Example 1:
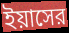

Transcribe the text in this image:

ইয়াসের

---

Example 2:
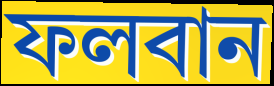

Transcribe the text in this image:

ফলবান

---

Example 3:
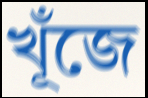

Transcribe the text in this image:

খূঁজে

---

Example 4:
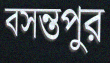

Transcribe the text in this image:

বসন্তপুর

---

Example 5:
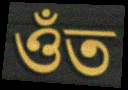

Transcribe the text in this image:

ওঁত